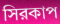
সিরকাপ